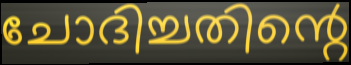
ചോദിച്ചതിന്റെ